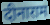
दीनाराम